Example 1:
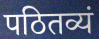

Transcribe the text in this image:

पठितव्यं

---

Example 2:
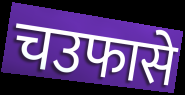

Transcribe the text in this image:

चउफासे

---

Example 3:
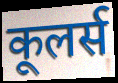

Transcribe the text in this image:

कूलर्स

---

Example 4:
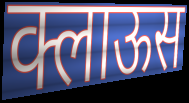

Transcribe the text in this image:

क्लाऊस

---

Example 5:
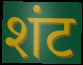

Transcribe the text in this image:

शंट